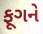
ફૂગને